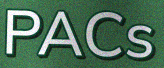
PACs